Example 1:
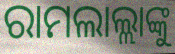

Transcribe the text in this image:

ରାମଲାଲ୍ଲାଙ୍କୁ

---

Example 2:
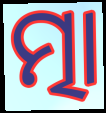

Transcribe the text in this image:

ତ୍ମା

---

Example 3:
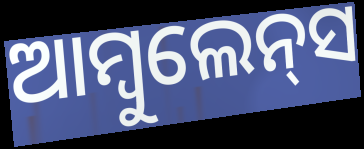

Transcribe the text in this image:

ଆମ୍ବୁଲେନ୍‌ସ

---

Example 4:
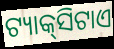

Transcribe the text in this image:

ଟ୍ୟାକ୍‌ସିଟାଏ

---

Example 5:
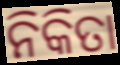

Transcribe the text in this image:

ନିକିତା